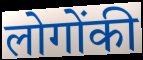
लोगोंकी